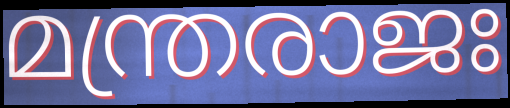
മന്ത്രരാജഃ